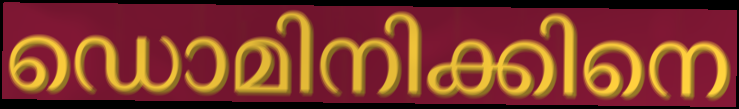
ഡൊമിനിക്കിനെ